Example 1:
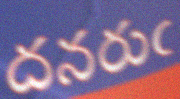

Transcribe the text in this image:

దనరుఁ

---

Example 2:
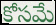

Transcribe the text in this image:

కోసమే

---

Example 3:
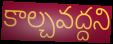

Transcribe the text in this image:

కాల్చవద్దని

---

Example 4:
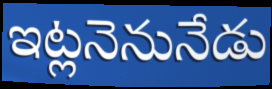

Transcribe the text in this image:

ఇట్లనెనునేడు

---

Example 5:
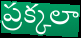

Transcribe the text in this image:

ప్రక్కలా